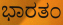
ಭಾರತಂ